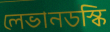
লেভানডস্কি